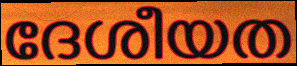
ദേശീയത